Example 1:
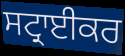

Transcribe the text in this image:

ਸਟ੍ਰਾਈਕਰ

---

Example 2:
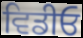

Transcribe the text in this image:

ਵਿਡੀਓ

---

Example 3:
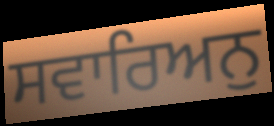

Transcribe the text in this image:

ਸਵਾਰਿਅਨੁ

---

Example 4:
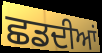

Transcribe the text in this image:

ਛਡਦੀਆਂ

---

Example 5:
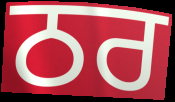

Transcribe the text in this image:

ਠਰ